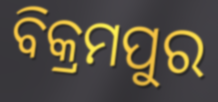
ବିକ୍ରମପୁର